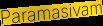
Paramasivam